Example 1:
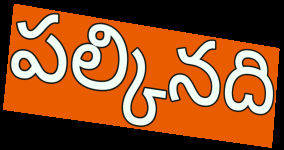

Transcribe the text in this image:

పల్కినది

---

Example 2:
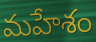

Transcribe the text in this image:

మహేశం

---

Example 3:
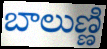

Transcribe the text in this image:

బాలుణ్ణి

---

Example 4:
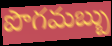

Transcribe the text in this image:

పొగమబ్బు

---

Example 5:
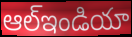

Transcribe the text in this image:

ఆల్ఇండియా